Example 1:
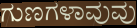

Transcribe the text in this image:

ಗುಣಗಳಾವುವು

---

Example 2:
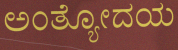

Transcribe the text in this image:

ಅಂತ್ಯೋದಯ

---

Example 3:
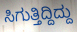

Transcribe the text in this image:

ಸಿಗುತ್ತಿದ್ದಿದ್ದು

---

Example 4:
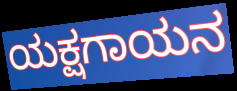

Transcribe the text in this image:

ಯಕ್ಷಗಾಯನ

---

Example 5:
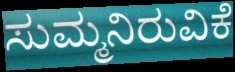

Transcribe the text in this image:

ಸುಮ್ಮನಿರುವಿಕೆ